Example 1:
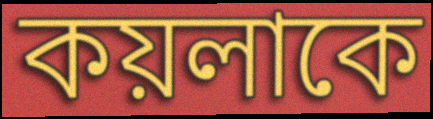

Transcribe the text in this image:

কয়লাকে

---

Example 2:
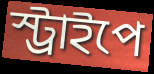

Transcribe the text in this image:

স্ট্রাইপে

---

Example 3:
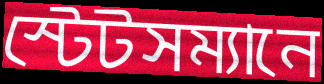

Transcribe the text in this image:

স্টেটসম্যানে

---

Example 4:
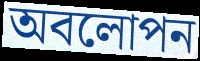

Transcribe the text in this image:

অবলোপন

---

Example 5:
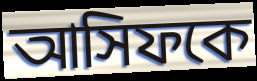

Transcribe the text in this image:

আসিফকে